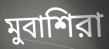
মুবাশিরা